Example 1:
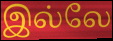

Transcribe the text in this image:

இல்லே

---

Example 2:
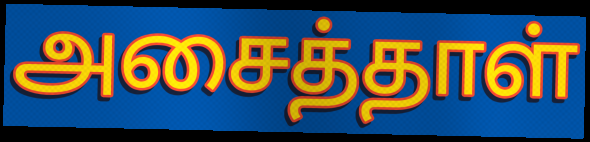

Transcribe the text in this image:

அசைத்தாள்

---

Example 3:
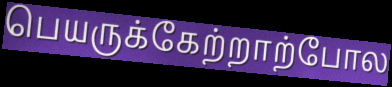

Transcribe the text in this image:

பெயருக்கேற்றாற்போல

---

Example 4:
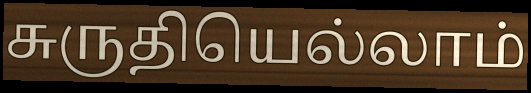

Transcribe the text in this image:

சுருதியெல்லாம்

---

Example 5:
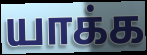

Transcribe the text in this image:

யாக்க